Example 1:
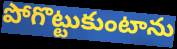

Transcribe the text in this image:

పోగొట్టుకుంటాను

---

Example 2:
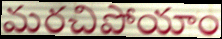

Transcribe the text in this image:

మరచిపోయాం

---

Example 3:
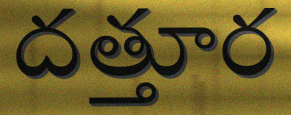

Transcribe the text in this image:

దత్తూర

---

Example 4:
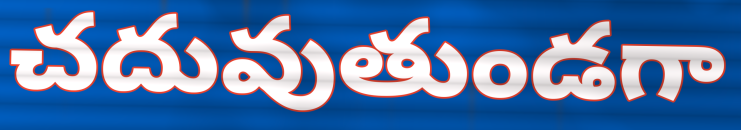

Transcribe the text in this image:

చదువుతుండగా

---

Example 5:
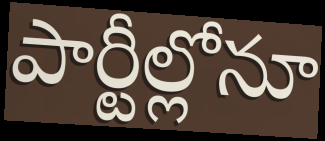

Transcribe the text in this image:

పార్టీల్లోనూ